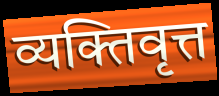
व्यक्तिवृत्त